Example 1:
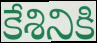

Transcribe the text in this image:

కేశినికి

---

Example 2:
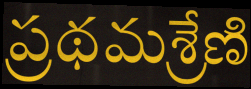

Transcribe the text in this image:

ప్రథమశ్రేణి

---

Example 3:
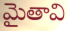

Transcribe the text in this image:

మైతావి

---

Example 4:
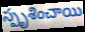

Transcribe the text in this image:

స్పృశించాయి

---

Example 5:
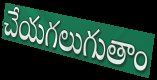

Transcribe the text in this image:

చేయగలుగుతాం